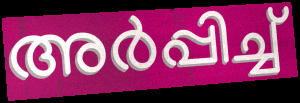
അർപ്പിച്ച്